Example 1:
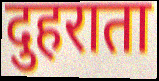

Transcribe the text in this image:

दुहराता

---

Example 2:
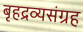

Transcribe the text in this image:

बृहद्रव्यसंग्रह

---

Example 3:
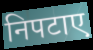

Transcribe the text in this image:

निपटाए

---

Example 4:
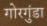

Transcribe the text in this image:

गोरगुंडा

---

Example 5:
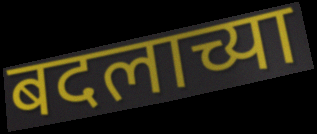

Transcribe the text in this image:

बदलाच्या